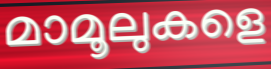
മാമൂലുകളെ